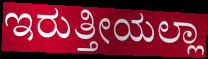
ಇರುತ್ತೀಯಲ್ಲಾ